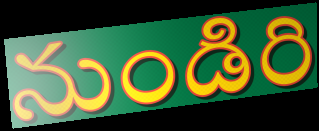
నుండిరి